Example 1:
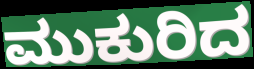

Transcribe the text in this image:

ಮುಕುರಿದ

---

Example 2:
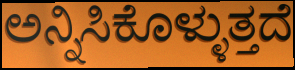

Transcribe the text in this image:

ಅನ್ನಿಸಿಕೊಳ್ಳುತ್ತದೆ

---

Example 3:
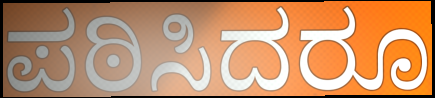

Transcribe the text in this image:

ಪಠಿಸಿದರೂ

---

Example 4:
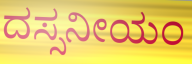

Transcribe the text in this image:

ದಸ್ಸನೀಯಂ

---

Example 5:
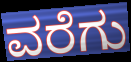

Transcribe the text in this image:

ವರೆಗು